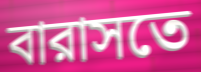
বারাসতে